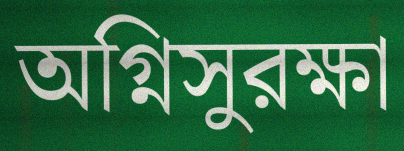
অগ্নিসুরক্ষা